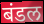
बंडल